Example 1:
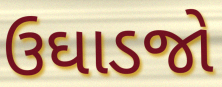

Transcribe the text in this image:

ઉઘાડજો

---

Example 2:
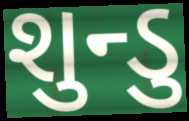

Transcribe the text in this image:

શુન્ડુ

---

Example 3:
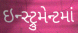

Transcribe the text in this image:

ઇન્સ્ટ્રુમેન્ટમાં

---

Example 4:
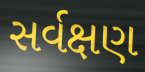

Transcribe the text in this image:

સર્વક્ષણ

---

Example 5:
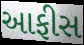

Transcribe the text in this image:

આફીસ